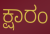
ಕ್ಷಾರಂ